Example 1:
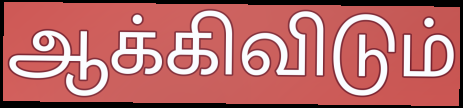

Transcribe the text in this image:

ஆக்கிவிடும்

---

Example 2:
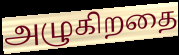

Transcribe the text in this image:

அழுகிறதை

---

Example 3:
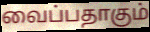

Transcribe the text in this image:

வைப்பதாகும்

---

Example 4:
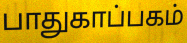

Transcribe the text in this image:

பாதுகாப்பகம்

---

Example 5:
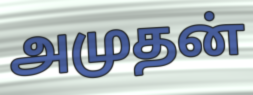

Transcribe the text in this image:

அமுதன்